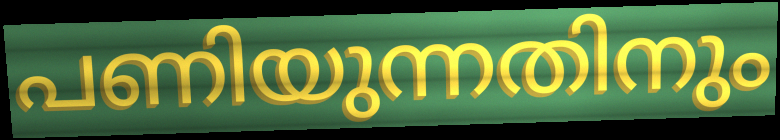
പണിയുന്നതിനും